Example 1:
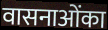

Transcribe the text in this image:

वासनाओंका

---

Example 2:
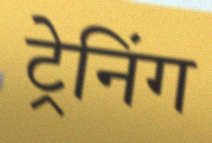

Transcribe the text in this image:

ट्रेनिंग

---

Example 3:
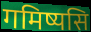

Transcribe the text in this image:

गमिष्यसि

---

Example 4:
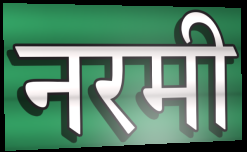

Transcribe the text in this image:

नरमी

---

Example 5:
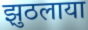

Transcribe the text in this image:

झुठलाया